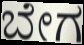
ಬೇಗ